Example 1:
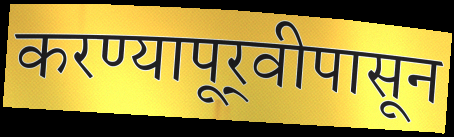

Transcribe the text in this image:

करण्यापूर्वीपासून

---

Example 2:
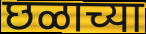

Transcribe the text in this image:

छळाच्या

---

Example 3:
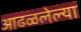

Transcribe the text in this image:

आढळलेल्या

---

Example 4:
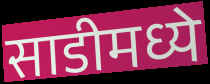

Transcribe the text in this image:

साडीमध्ये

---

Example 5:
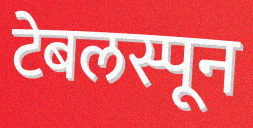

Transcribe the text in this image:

टेबलस्पून